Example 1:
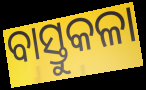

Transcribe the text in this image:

ବାସ୍ତୁକଳା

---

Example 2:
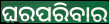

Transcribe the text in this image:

ଘରପରିବାର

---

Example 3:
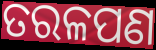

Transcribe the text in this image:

ତରଳପଣ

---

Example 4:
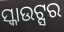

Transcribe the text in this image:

ସ୍କାଉଟ୍ସର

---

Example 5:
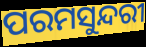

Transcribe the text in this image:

ପରମସୁନ୍ଦରୀ